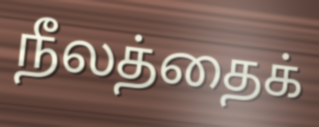
நீலத்தைக்